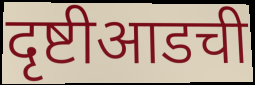
दृष्टीआडची